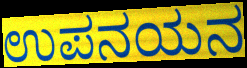
ಉಪನಯನ